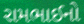
રામભાઈનો